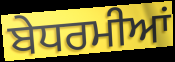
ਬੇਧਰਮੀਆਂ